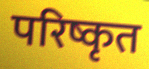
परिष्कृत